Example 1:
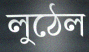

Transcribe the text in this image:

লুঠেল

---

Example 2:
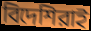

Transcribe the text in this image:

বিদেশিরাই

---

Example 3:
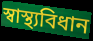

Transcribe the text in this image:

স্বাস্থ্যবিধান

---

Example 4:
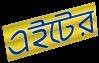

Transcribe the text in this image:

এইটের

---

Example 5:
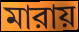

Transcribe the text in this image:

মারায়